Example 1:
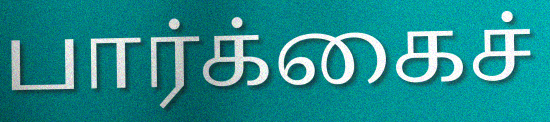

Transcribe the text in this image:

பார்க்கைச்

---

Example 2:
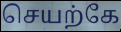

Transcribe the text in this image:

செயற்கே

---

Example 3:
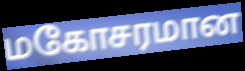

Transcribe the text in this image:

மகோசரமான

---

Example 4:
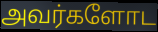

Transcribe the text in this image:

அவர்களோட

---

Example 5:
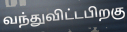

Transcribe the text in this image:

வந்துவிட்டபிறகு